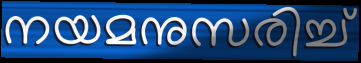
നയമനുസരിച്ച്